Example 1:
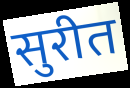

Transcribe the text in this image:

सुरीत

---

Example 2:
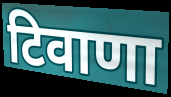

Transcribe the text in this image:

टिवाणा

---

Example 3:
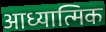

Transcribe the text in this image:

आध्यात्मिक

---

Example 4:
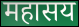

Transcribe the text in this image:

महासय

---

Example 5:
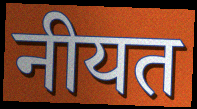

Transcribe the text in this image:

नीयत